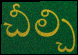
చీల్చి